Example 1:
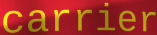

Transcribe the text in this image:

carrier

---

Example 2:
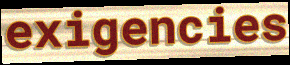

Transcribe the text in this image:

exigencies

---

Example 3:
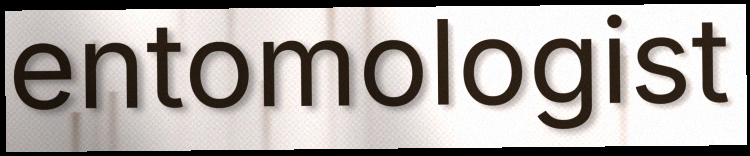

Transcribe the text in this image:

entomologist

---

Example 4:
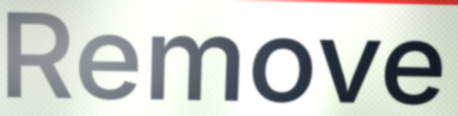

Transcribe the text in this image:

Remove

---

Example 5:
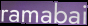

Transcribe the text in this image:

ramabai